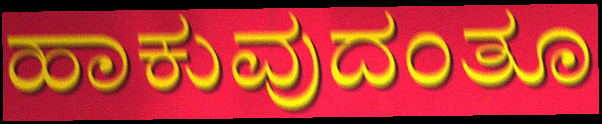
ಹಾಕುವುದಂತೂ